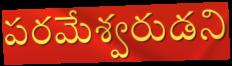
పరమేశ్వరుడని